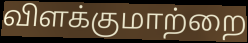
விளக்குமாற்றை